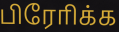
பிரேரிக்க